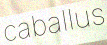
caballus